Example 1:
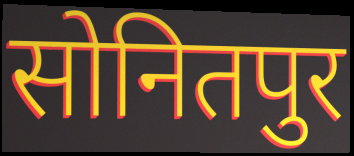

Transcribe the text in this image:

सोनितपुर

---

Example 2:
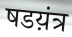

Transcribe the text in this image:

षडय़ंत्र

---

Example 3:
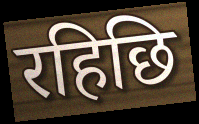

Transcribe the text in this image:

रहिछि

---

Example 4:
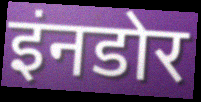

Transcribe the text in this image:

इंनडोर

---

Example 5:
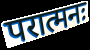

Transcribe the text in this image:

परात्मनः